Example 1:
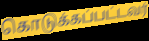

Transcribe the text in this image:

கொடுக்கப்பட்டவர்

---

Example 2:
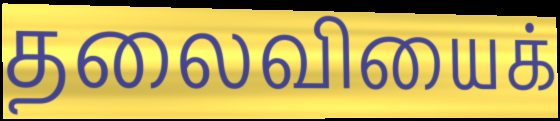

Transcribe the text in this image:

தலைவியைக்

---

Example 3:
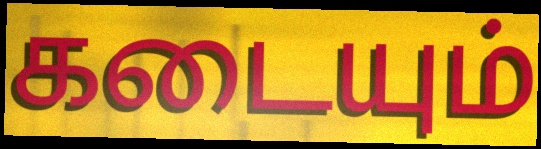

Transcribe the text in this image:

கடையும்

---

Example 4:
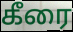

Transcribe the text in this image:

கீரை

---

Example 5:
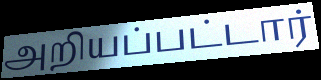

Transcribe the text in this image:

அறியப்பட்டார்